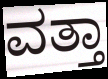
ವತ್ತಾ